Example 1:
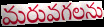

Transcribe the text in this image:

మరువగలను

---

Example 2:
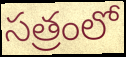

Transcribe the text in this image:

సత్రంలో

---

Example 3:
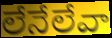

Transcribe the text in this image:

లేనేలేవా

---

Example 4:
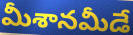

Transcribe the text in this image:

మీశానమీడే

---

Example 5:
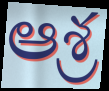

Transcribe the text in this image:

ఆశ్ర